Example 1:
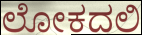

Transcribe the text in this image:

ಲೋಕದಲಿ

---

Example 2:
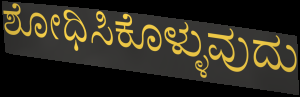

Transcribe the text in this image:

ಶೋಧಿಸಿಕೊಳ್ಳುವುದು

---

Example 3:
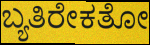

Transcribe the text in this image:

ಬ್ಯತಿರೇಕತೋ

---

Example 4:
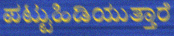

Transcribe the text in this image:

ಪಟ್ಟುಹಿಡಿಯುತ್ತಾರೆ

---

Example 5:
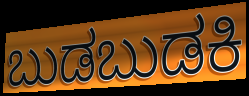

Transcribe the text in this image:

ಬುಡಬುಡಕಿ